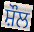
ਸ਼ੌਲ